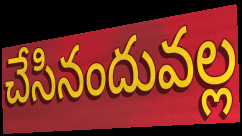
చేసినందువల్ల